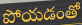
పోయడంతో